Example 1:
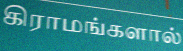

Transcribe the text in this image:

கிராமங்களால்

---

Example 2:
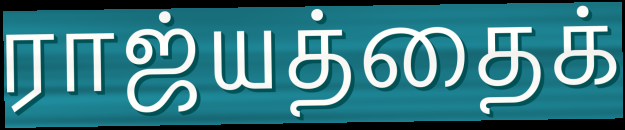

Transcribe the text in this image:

ராஜ்யத்தைக்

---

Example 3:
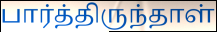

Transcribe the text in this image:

பார்த்திருந்தாள்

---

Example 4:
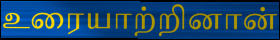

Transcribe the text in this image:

உரையாற்றினான்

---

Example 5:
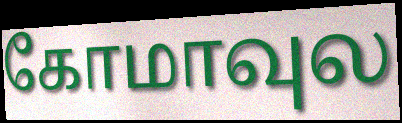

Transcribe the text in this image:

கோமாவுல